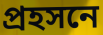
প্রহসনে